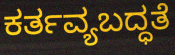
ಕರ್ತವ್ಯಬದ್ಧತೆ